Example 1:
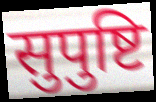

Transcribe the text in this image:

सुपुष्टि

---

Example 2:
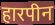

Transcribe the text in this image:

हारपीन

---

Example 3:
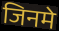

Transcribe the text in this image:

जिनमे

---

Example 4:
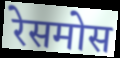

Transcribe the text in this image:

रेसमोस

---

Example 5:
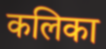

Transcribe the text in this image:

कलिका